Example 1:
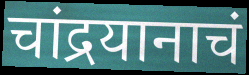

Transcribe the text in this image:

चांद्रयानाचं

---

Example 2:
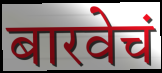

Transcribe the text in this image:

बारवेचं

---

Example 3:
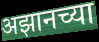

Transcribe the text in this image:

अझानच्या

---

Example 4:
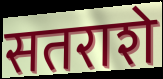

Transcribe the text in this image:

सतराशे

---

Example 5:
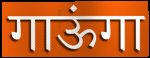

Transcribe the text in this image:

गाऊंगा